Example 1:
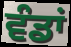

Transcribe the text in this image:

ਵੰਡਾਂ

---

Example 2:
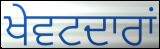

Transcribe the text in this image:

ਖੇਵਟਦਾਰਾਂ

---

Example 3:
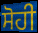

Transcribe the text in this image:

ਸੋਹੀ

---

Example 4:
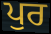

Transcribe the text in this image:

ਪੁਰ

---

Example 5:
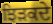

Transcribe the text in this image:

ਝਿੜਕਦੇ